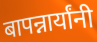
बापन्नार्यांनी